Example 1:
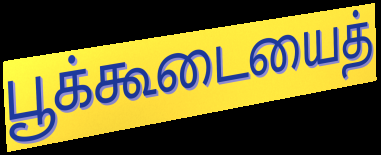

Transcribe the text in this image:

பூக்கூடையைத்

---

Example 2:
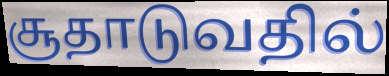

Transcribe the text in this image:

சூதாடுவதில்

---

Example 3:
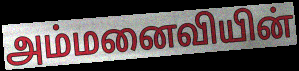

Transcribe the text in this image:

அம்மனைவியின்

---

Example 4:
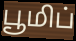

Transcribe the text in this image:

பூமிப்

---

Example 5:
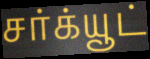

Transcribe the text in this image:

சர்க்யூட்